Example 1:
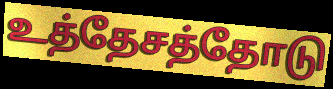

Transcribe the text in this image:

உத்தேசத்தோடு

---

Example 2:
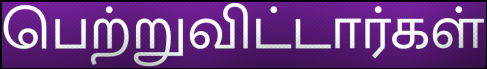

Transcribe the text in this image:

பெற்றுவிட்டார்கள்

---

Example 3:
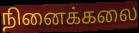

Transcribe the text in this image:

நினைக்கலை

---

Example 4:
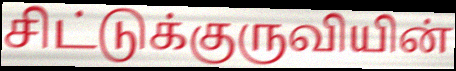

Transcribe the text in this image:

சிட்டுக்குருவியின்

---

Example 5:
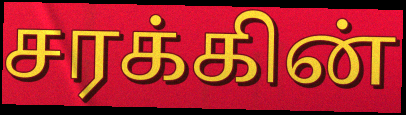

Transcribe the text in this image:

சரக்கின்